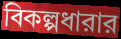
বিকল্পধারার